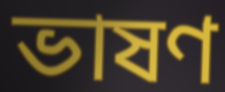
ভাষণ